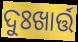
ଦୁଃଖାର୍ତ୍ତ